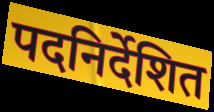
पदनिर्देशित